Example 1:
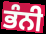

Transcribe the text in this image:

ਭੰਨੀ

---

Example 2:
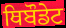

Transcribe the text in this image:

ਥਿਬੌਡੇਟ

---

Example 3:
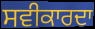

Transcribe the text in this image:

ਸਵੀਕਾਰਦਾ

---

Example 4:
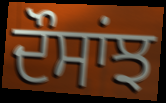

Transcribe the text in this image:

ਦੌਸਾਂਝ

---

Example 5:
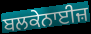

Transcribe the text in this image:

ਬਲਕੇਨਾਈਜ਼